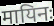
मायिनः